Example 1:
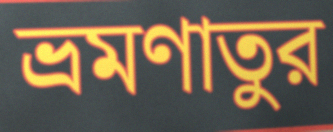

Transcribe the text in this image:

ভ্রমণাতুর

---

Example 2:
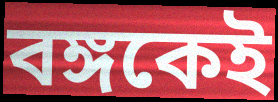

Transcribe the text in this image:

বঙ্গকেই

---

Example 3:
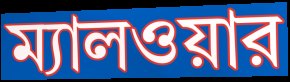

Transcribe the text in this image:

ম্যালওয়ার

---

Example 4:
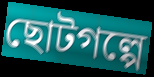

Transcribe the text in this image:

ছোটগল্পে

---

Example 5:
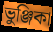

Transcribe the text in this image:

ভুঞ্জিকা